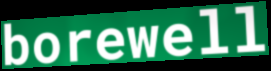
borewell